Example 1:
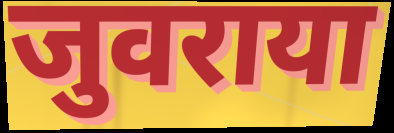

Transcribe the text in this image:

जुवराया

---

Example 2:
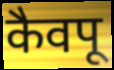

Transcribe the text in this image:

कैवपू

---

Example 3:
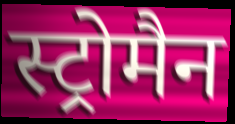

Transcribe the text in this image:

स्ट्रोमैन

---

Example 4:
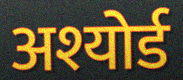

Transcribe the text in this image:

अश्योर्ड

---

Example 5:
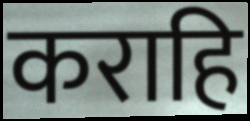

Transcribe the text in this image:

कराहि